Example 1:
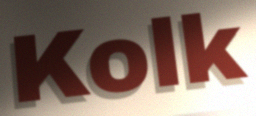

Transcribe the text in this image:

Kolk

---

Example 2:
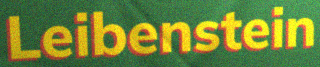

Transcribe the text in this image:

Leibenstein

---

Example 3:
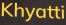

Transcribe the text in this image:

Khyatti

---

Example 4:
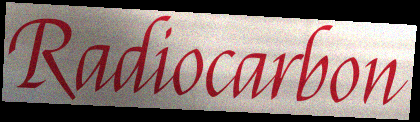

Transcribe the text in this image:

Radiocarbon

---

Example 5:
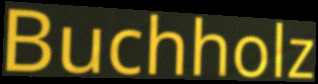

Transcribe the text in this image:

Buchholz